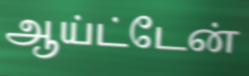
ஆய்ட்டேன்